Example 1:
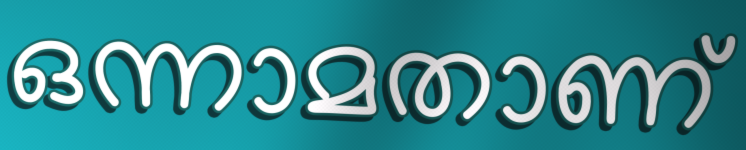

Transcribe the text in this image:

ഒന്നാമതാണ്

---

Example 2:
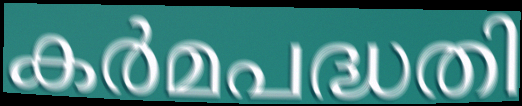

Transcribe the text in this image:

കർമപദ്ധതി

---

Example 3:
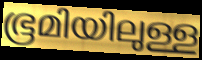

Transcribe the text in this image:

ഭൂമിയിലുള്ള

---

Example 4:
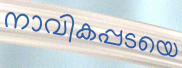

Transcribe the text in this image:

നാവികപ്പടയെ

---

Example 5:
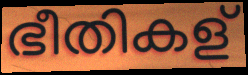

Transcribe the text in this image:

ഭീതികള്